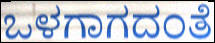
ಒಳಗಾಗದಂತೆ